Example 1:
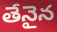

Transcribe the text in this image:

తేనైన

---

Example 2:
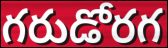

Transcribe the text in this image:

గరుడోరగ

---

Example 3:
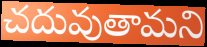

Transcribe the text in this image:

చదువుతామని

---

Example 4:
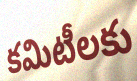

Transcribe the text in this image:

కమిటీలకు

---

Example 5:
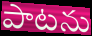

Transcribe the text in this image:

పాటను